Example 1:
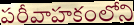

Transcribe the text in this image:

పరీవాహకంలోని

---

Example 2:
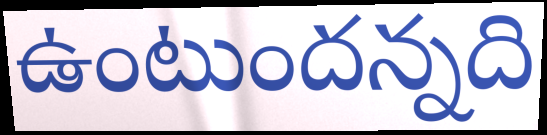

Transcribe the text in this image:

ఉంటుందన్నది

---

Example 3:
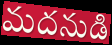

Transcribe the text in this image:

మదనుడి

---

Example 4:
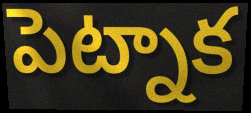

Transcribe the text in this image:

పెట్నాక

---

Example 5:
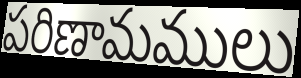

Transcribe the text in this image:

పరిణామములు